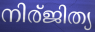
നിര്ജിത്യ